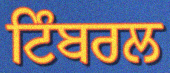
ਟਿੰਬਰਲ